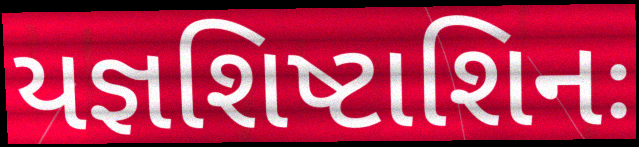
યજ્ઞશિષ્ટાશિનઃ